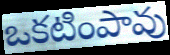
ఒకటింపావు